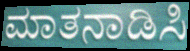
ಮಾತನಾಡಿಸಿ